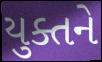
યુક્તને